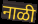
नाळी